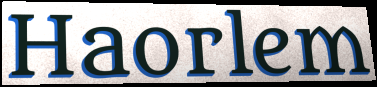
Haorlem